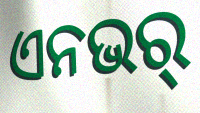
ଏନଭର୍